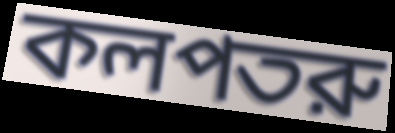
কলপতরু